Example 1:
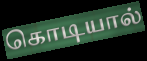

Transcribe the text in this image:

கொடியால்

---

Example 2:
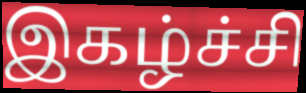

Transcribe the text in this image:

இகழ்ச்சி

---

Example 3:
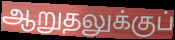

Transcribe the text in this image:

ஆறுதலுக்குப்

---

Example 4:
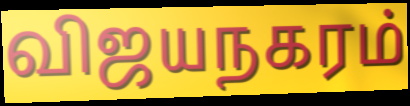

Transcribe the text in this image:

விஜயநகரம்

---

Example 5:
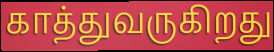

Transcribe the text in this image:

காத்துவருகிறது